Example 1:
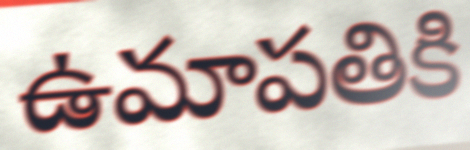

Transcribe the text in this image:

ఉమాపతికి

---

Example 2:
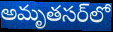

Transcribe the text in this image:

అమృతసర్‌లో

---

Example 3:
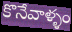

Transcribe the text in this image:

కొనేవాళ్ళం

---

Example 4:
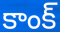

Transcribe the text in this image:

కాంక్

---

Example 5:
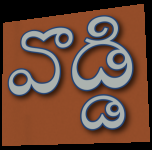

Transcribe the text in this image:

వొడ్డి